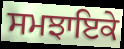
ਸਮਝਾਇਕੇ